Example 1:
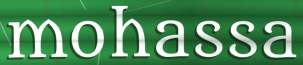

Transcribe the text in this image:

mohassa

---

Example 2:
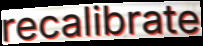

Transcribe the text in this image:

recalibrate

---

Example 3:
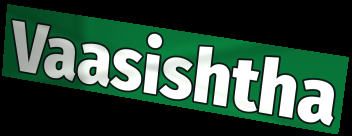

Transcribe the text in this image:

Vaasishtha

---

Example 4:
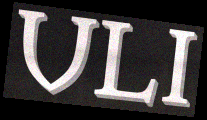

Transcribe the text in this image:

ULI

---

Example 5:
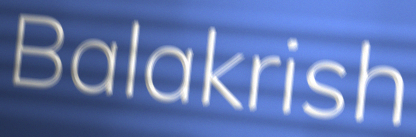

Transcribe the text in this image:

Balakrish